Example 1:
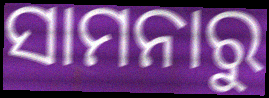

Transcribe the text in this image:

ସାମନାରୁ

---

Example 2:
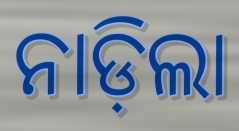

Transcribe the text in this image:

ନାଡ଼ିଲା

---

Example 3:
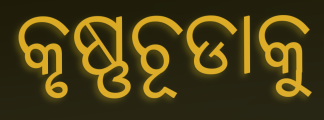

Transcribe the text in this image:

କୃଷ୍ଣଚୂଡାକୁ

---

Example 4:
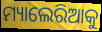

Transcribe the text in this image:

ମ୍ୟାଲେରିଆକୁ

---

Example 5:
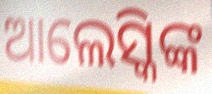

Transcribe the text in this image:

ଆଲେସ୍କିଙ୍କ